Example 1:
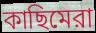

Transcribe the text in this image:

কাছিমেরা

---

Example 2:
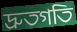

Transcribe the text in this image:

দ্রুতগতি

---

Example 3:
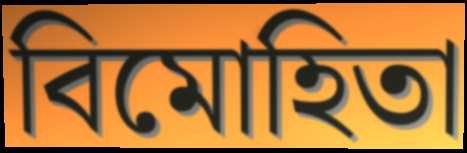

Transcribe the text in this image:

বিমোহিতা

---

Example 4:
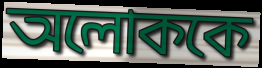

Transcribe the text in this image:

অলোককে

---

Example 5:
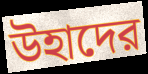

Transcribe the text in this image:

উহাদের